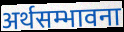
अर्थसम्भावना